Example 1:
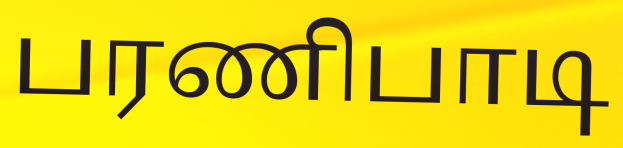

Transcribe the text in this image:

பரணிபாடி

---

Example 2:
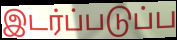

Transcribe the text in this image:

இடர்ப்படுப்ப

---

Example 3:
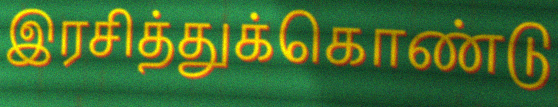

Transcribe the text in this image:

இரசித்துக்கொண்டு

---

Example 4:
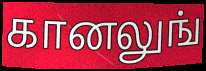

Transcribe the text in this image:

கானலுங்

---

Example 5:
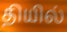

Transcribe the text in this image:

தியில்